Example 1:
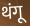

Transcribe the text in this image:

थंगू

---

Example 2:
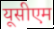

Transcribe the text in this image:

यूसीएम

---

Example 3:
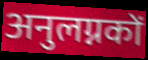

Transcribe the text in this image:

अनुलग्नकों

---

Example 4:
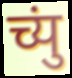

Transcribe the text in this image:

च्युं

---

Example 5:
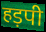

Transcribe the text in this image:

हड़पी